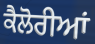
ਕੈਲੋਰੀਆਂ